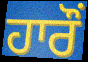
ਹਾਰੌਂ